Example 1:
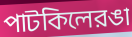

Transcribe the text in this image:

পাটকিলেরঙা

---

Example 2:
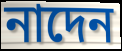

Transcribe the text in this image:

নাদেন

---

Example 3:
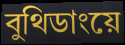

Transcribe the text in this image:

বুথিডাংয়ে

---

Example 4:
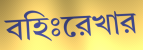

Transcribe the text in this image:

বহিঃরেখার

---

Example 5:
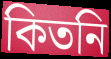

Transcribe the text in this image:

কিতনি